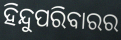
ହିନ୍ଦୁପରିବାରର